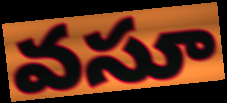
వసూ